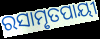
ରସାମୃତପାୟୀ